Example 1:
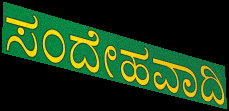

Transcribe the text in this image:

ಸಂದೇಹವಾದಿ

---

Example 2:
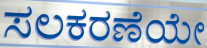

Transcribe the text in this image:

ಸಲಕರಣೆಯೇ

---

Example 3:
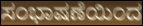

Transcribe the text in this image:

ಸಂಭಾಷಣೆಯಿಂದ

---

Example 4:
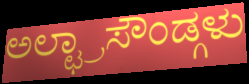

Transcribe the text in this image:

ಅಲ್ಟ್ರಾಸೌಂಡ್ಗಳು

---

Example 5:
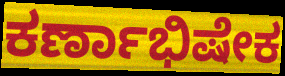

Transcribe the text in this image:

ಕರ್ಣಾಭಿಷೇಕ